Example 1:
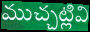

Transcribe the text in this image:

ముచ్చట్లివి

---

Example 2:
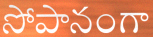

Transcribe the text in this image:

సోపానంగా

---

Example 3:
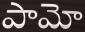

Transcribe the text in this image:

పామో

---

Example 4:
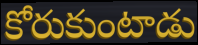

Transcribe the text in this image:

కోరుకుంటాడు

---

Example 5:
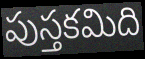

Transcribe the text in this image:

పుస్తకమిది